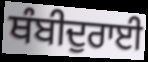
ਥੰਬੀਦੁਰਾਈ